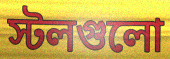
স্টলগুলো